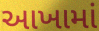
આખામાં